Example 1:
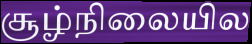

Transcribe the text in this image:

சூழ்நிலையில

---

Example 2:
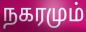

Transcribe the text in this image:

நகரமும்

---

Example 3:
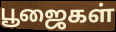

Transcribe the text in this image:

பூஜைகள்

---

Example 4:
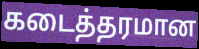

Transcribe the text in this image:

கடைத்தரமான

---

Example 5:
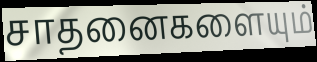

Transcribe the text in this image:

சாதனைகளையும்